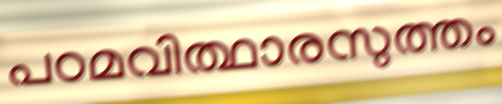
പഠമവിത്ഥാരസുത്തം